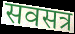
सवसत्र